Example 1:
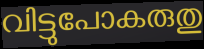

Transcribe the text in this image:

വിട്ടുപോകരുതു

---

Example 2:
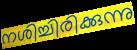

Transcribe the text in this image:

നശിച്ചിരിക്കുന്നു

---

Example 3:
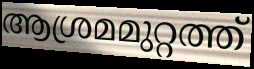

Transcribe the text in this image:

ആശ്രമമുറ്റത്ത്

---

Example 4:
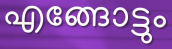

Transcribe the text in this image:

എങ്ങോട്ടും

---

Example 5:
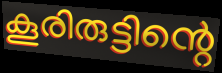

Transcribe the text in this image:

കൂരിരുട്ടിന്റെ